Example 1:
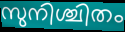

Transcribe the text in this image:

സുനിശ്ചിതം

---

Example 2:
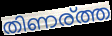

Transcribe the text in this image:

തിണര്ത്ത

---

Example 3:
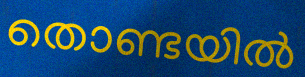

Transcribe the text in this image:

തൊണ്ടയിൽ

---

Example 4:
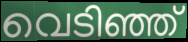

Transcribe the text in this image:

വെടിഞ്ഞ്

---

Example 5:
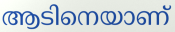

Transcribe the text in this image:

ആടിനെയാണ്